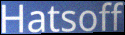
Hatsoff